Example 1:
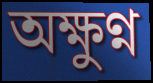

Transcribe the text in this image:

অক্ষুণ্ন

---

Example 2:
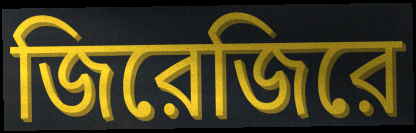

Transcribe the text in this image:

জিরেজিরে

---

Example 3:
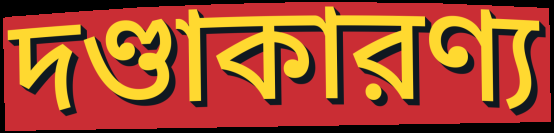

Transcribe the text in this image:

দণ্ডাকারণ্য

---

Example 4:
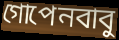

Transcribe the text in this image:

গোপেনবাবু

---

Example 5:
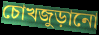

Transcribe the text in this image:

চোখজুড়ানো